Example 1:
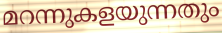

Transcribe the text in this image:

മറന്നുകളയുന്നതും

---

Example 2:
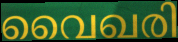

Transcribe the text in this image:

വൈഖരി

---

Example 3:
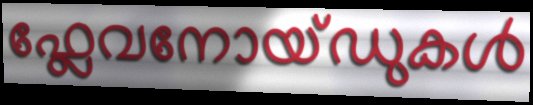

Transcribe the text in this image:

ഫ്ലേവനോയ്ഡുകൾ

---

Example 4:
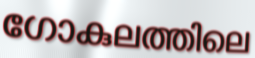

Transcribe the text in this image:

ഗോകുലത്തിലെ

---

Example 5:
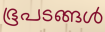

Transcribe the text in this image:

ഭൂപടങ്ങൾ